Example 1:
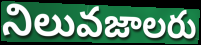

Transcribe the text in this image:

నిలువజాలరు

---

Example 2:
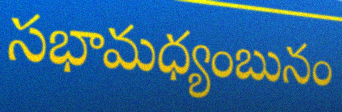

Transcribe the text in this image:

సభామధ్యంబునం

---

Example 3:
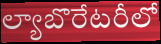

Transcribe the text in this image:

ల్యాబొరేటరీలో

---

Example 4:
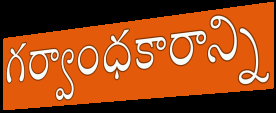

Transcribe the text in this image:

గర్వాంధకారాన్ని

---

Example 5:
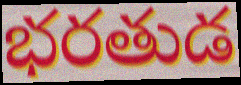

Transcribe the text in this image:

భరతుడ